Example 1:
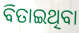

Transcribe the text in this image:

ବିତାଇଥିବା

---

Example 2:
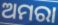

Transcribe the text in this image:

ଅମରା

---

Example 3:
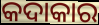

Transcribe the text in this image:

କଦାକାର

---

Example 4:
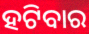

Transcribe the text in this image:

ହଟିବାର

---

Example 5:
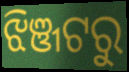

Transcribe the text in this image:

ଝିଞ୍ଜଟରୁ